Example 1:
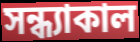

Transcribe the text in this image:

সন্ধ্যাকাল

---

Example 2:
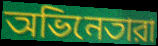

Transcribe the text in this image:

অভিনেতারা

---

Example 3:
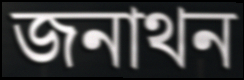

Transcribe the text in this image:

জনাথন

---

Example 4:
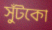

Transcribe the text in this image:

সুঁটকো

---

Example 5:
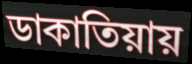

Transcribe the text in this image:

ডাকাতিয়ায়